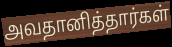
அவதானித்தார்கள்